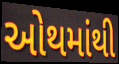
ઓથમાંથી